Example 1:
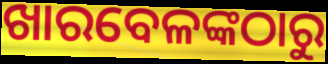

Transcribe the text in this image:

ଖାରବେଳଙ୍କଠାରୁ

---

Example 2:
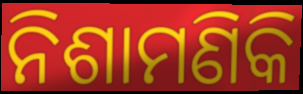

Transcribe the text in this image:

ନିଶାମଣିକି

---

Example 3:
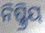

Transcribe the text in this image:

ନିଷ୍କ୍ରିୟ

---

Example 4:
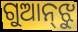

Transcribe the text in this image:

ଗୁଆନ୍‌ଝୁ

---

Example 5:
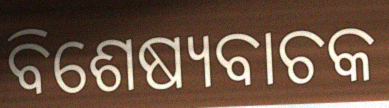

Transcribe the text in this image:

ବିଶେଷ୍ୟବାଚକ